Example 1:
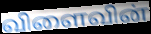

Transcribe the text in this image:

விளைவின்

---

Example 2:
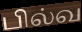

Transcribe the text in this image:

பில்வ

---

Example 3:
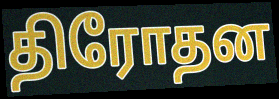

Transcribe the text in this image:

திரோதன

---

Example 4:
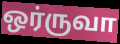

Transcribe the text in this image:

ஒர்ருவா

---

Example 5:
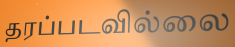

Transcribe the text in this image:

தரப்படவில்லை